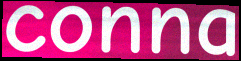
conna